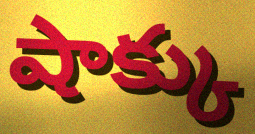
షాక్కు